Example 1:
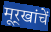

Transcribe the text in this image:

मूर्खांचें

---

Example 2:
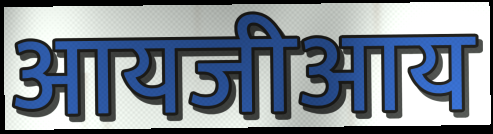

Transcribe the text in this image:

आयजीआय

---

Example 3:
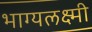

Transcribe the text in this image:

भाग्यलक्ष्मी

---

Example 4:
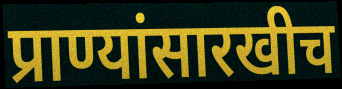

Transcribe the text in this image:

प्राण्यांसारखीच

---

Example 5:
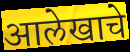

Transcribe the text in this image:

आलेखाचे